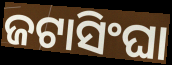
ଜଟାସିଂଘା